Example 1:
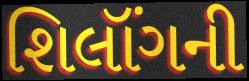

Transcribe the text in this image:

શિલૉંગની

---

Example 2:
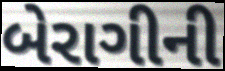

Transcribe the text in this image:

બેરાગીની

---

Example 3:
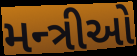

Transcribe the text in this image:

મન્ત્રીઓ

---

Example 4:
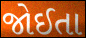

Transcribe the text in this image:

જોઈતા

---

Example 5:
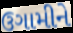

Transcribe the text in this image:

ઉગામીને